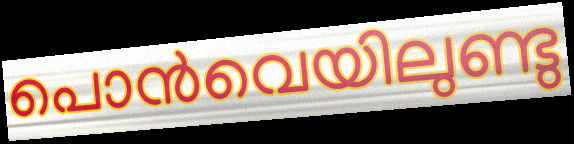
പൊൻവെയിലുണ്ടു